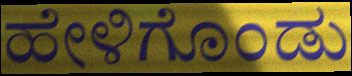
ಹೇಳಿಗೊಂಡು